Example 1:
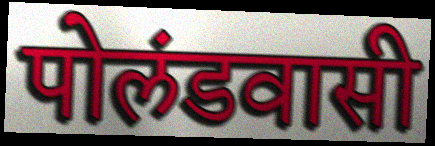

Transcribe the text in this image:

पोलंडवासी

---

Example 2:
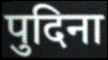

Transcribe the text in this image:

पुदिना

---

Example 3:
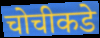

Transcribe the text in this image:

चोचीकडे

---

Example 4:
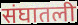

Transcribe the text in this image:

संघातली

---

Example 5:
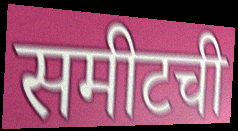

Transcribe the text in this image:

समीटची